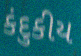
કંદુકીય